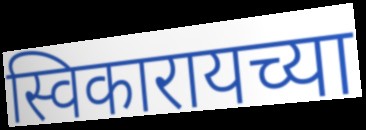
स्विकारायच्या